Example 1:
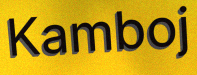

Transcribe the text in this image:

Kamboj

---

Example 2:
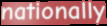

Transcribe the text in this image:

nationally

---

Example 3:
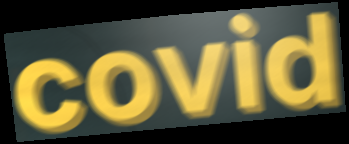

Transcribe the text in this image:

covid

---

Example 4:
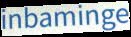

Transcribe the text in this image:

inbaminge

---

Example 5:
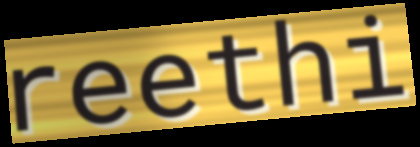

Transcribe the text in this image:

reethi